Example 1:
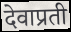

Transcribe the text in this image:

देवाप्रती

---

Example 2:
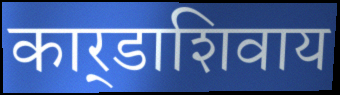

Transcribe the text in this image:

कार्डाशिवाय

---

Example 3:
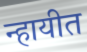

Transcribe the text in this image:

न्हायीत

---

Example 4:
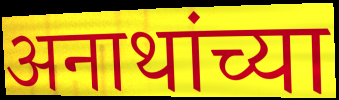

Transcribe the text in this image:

अनाथांच्या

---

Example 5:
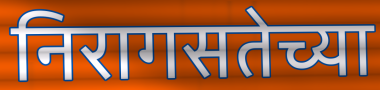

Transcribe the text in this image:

निरागसतेच्या